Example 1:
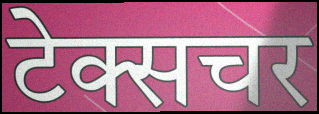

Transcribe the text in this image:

टेक्सचर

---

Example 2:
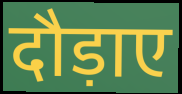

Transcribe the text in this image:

दौड़ाए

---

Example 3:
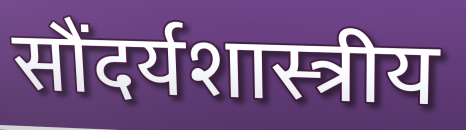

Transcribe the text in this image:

सौंदर्यशास्त्रीय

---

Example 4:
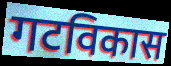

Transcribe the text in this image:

गटविकास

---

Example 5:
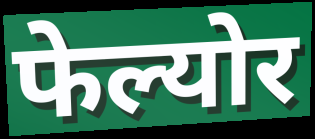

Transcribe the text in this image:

फेल्योर